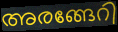
അരങ്ങേറി